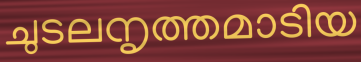
ചുടലനൃത്തമാടിയ